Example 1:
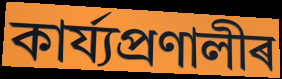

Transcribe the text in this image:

কাৰ্য্যপ্ৰণালীৰ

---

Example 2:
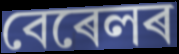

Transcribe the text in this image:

বেৰেলৰ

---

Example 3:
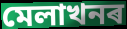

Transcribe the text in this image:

মেলাখনৰ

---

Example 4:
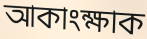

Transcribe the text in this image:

আকাংক্ষাক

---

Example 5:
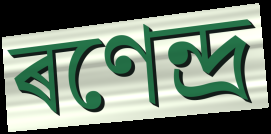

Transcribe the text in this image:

ৰণেন্দ্ৰ